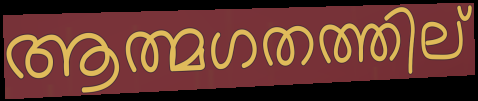
ആത്മഗതത്തില്